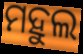
ମହୁଲ